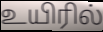
உயிரில்